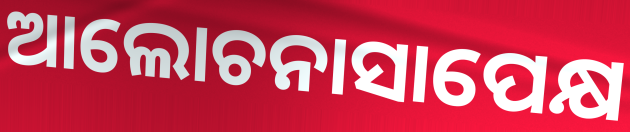
ଆଲୋଚନାସାପେକ୍ଷ